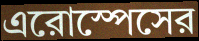
এরোস্পেসের